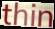
thin